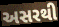
અસરથી